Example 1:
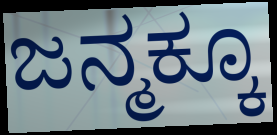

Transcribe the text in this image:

ಜನ್ಮಕ್ಕೂ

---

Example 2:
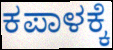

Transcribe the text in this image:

ಕಪಾಳಕ್ಕೆ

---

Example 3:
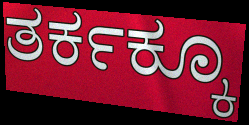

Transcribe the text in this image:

ತರ್ಕಕ್ಕೂ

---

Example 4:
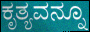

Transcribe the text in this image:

ಕೃತ್ಯವನ್ನೂ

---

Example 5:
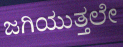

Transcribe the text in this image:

ಜಗಿಯುತ್ತಲೇ